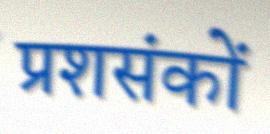
प्रशसंकों